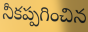
నీకప్పగించిన